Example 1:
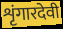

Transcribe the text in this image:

शृंगारदेवी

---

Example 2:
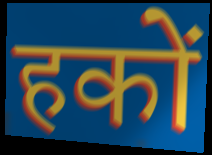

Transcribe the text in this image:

हकों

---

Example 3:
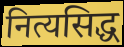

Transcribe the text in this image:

नित्यसिद्ध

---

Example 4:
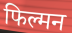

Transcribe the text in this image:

फिल्मन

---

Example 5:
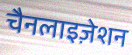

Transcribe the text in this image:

चैनलाइज़ेशन